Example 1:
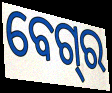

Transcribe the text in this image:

ବେଗ୍‌ର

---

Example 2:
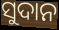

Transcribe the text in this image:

ସୁଦାନ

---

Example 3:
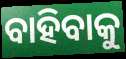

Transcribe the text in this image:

ବାହିବାକୁ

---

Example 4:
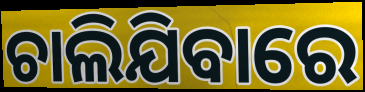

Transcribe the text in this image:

ଚାଲିଯିବାରେ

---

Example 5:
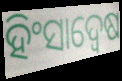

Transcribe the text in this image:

ହିଂସାଦ୍ୱେଷ